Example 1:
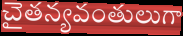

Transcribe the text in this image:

చైతన్యవంతులుగా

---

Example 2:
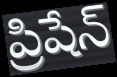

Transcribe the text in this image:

ప్రిషేన్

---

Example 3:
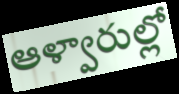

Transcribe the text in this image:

ఆళ్వారుల్లో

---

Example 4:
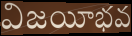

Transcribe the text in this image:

విజయీభవ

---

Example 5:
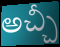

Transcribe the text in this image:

అచ్చీ